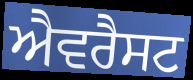
ਐਵਰੈਸਟ